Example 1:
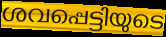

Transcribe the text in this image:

ശവപ്പെട്ടിയുടെ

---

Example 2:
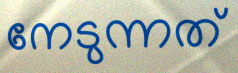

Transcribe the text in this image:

നേടുന്നത്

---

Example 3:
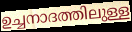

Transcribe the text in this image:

ഉച്ചനാദത്തിലുള്ള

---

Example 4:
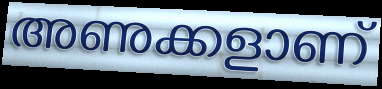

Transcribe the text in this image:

അണുക്കളാണ്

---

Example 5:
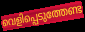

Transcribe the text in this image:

വെളിപ്പെടുത്തേണ്ട